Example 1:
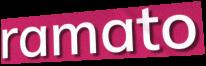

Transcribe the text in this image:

ramato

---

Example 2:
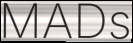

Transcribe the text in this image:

MADs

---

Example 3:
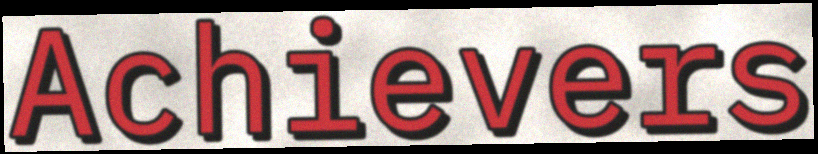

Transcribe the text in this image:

Achievers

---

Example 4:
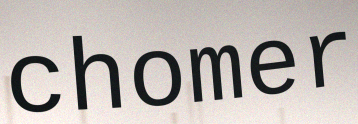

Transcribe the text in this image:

chomer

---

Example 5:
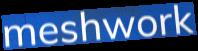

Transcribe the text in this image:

meshwork